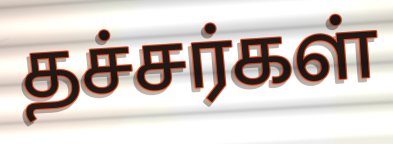
தச்சர்கள்